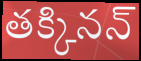
తక్కినన్